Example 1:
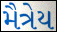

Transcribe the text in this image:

મૈત્રેય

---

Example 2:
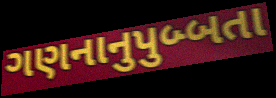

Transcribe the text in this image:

ગણનાનુપુબ્બતા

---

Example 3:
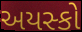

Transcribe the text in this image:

અયસ્કો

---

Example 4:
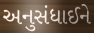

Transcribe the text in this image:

અનુસંધાઈને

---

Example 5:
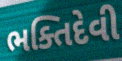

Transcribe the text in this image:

ભક્તિદેવી